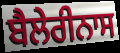
ਬੈਲੇਰੀਨਾਸ